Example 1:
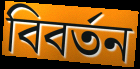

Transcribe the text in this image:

বিবর্তন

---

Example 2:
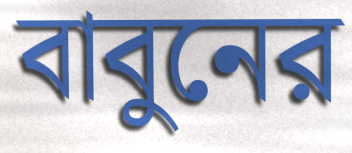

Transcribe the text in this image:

বাবুনের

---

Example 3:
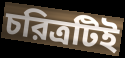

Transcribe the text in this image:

চরিত্রটিই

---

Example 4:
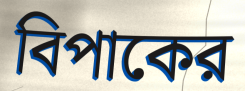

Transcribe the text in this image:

বিপাকের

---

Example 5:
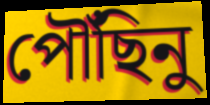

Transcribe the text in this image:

পৌঁছিনু